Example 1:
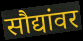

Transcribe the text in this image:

सौद्यांवर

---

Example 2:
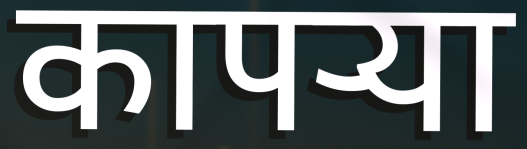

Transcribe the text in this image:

कापर्‍या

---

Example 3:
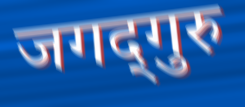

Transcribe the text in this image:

जगद्‍गुरु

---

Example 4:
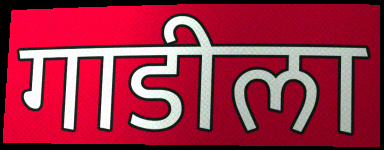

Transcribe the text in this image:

गाडीला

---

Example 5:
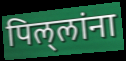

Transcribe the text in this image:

पिल्लांना